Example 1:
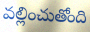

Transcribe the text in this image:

వల్లించుతోంది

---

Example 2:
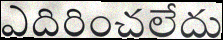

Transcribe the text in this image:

ఎదిరించలేదు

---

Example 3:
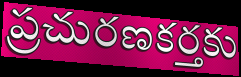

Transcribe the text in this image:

ప్రచురణకర్తకు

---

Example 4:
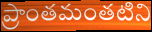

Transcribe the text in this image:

ప్రాంతమంతటిని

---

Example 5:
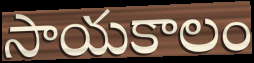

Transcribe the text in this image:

సాయకాలం